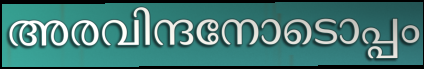
അരവിന്ദനോടൊപ്പം